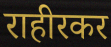
राहीरकर